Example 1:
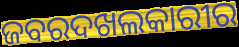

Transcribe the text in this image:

ଜବରଦଖଲକାରୀର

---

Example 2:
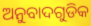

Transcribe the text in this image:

ଅନୁବାଦଗୁଡିକ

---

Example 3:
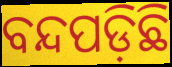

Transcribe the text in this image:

ବନ୍ଦପଡ଼ିଛି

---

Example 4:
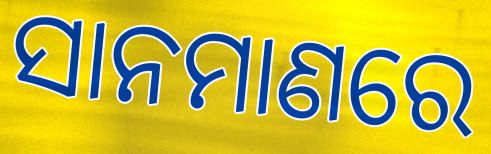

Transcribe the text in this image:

ସାନମାଣରେ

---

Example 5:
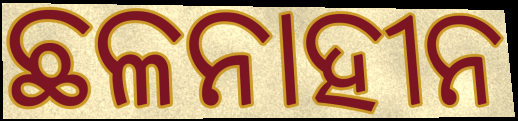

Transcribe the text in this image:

ଛଳନାହୀନ